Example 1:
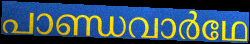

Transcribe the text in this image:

പാണ്ഡവാർഥേ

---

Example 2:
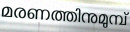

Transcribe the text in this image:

മരണത്തിനുമുമ്പ്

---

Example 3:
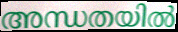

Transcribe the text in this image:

അന്ധതയിൽ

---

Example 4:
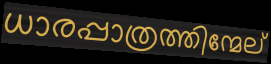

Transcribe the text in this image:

ധാരപ്പാത്രത്തിന്മേല്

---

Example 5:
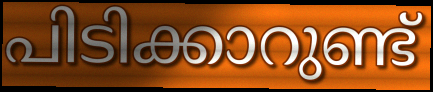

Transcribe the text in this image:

പിടിക്കാറുണ്ട്